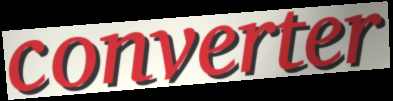
converter